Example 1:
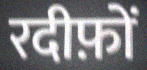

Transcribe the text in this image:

रदीफ़ों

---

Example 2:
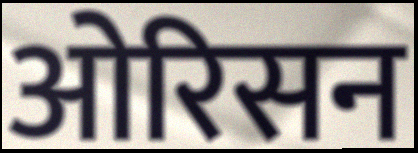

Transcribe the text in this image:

ओरिसन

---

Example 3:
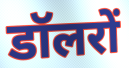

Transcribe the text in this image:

डॉलरों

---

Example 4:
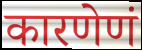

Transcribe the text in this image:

कारणेणं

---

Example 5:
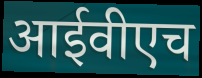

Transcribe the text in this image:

आईवीएच